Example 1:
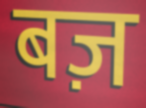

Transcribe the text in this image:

बज़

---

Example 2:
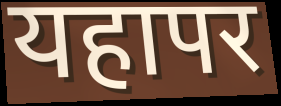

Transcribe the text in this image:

यहापर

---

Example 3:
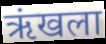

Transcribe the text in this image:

ऋंखला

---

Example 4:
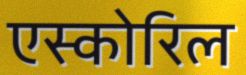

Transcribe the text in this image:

एस्कोरिल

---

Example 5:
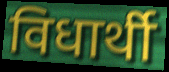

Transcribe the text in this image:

विधार्थी